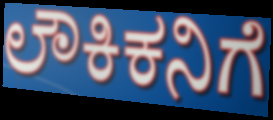
ಲೌಕಿಕನಿಗೆ